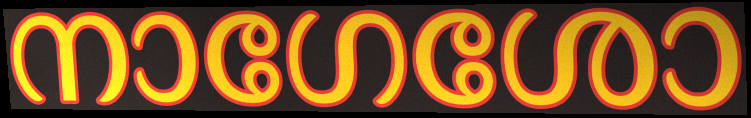
നാഗേശോ